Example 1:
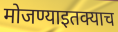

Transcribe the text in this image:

मोजण्याइतक्याच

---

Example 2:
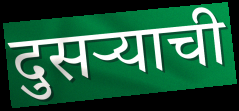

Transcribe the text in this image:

दुसऱ्याची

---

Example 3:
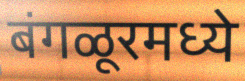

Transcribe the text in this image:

बंगळूरमध्ये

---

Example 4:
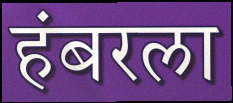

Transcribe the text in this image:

हंबरला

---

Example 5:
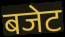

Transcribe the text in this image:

बजेट